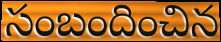
సంబందించిన